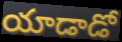
యాడాడో